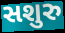
સશુરુ